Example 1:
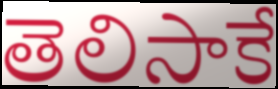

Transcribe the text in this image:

తెలిసాకే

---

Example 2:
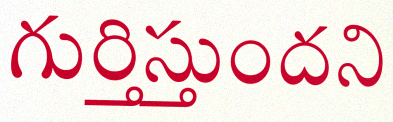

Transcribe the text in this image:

గుర్తిస్తుందని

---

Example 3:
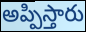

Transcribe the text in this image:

అప్పిస్తారు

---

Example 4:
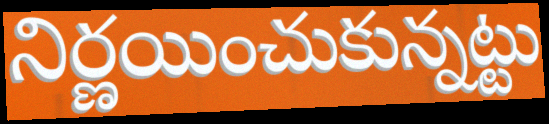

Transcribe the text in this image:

నిర్ణయించుకున్నట్టు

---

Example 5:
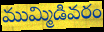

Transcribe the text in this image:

ముమ్మిడివరం